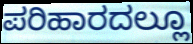
ಪರಿಹಾರದಲ್ಲೂ